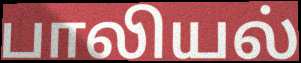
பாலியல்